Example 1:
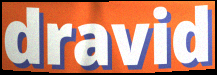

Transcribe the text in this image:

dravid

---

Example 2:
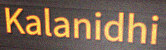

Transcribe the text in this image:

Kalanidhi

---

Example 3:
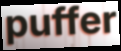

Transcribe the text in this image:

puffer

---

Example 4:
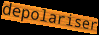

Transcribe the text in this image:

depolariser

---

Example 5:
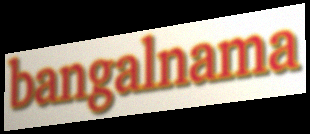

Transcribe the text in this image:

bangalnama